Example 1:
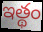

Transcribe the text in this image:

ఇత్థం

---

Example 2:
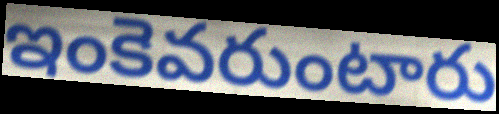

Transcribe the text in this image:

ఇంకెవరుంటారు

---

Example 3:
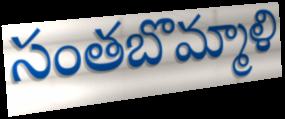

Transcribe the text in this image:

సంతబొమ్మాళి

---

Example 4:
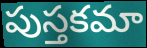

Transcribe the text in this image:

పుస్తకమా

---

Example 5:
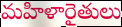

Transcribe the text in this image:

మహిళారైతులు